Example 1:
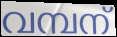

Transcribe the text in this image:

വമ്പന്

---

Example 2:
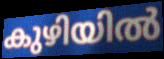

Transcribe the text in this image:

കുഴിയിൽ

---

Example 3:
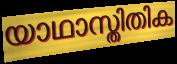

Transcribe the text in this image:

യാഥാസ്തിതിക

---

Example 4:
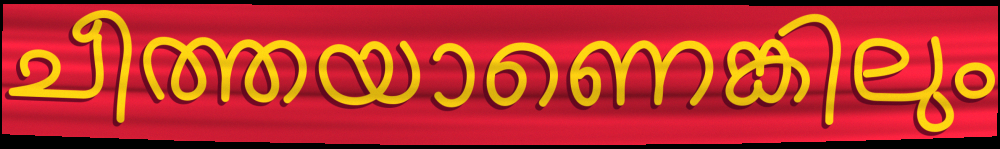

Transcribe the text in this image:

ചീത്തയാണെങ്കിലും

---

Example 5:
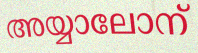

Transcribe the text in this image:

അയ്യാലോന്